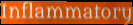
Inflammatory